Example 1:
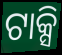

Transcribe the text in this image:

ଟାକ୍ସି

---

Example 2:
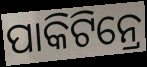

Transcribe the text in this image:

ପାକିଟିନ୍ରେ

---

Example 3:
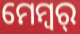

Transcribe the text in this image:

ମେମ୍ବର୍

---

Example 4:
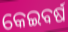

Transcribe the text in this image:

କେଇବର୍ଷ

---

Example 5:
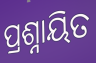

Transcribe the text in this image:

ପ୍ରଶ୍ନାୟିତ